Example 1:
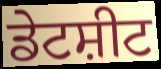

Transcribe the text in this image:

ਡੇਟਸ਼ੀਟ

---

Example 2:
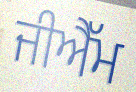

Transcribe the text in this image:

ਜੀਐੱਮ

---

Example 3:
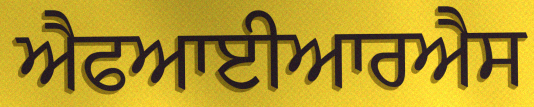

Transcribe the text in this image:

ਐਫਆਈਆਰਐਸ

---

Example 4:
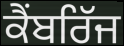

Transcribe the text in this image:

ਕੈਂਬਰਿੱਜ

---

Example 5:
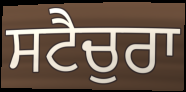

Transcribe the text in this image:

ਸਟੈਚੁਰਾ